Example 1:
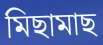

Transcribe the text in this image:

মিছামাছ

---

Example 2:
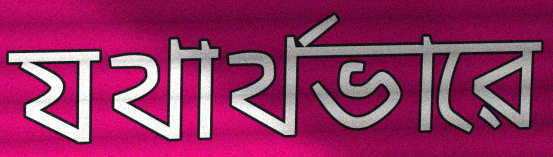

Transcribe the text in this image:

যথাৰ্থভাৱে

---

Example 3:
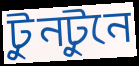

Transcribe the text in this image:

টুনটুনে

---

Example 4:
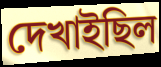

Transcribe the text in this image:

দেখাইছিল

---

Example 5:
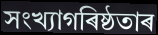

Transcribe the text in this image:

সংখ্যাগৰিষ্ঠতাৰ